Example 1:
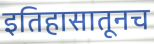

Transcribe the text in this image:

इतिहासातूनच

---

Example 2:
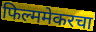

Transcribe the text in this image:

फिल्ममेकरचा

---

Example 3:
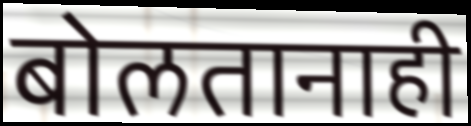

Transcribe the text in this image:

बोलतानाही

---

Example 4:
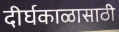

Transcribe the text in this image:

दीर्घकाळासाठी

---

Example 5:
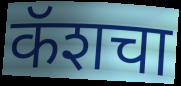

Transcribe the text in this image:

कॅशचा